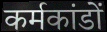
कर्मकांडों